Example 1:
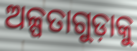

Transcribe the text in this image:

ଅଳ୍ପତାଗୁଡ଼ାକୁ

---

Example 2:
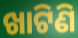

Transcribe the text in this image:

ଖାଟିଣି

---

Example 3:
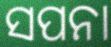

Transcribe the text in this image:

ସପନା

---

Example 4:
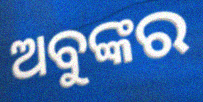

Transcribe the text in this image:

ଅବୁଙ୍କର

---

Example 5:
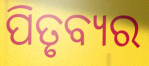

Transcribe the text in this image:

ପିତୃବ୍ୟର